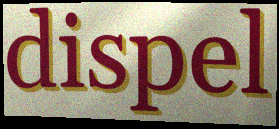
dispel